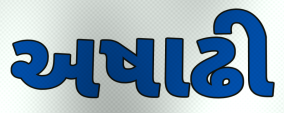
અષાઢી